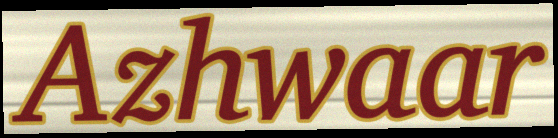
Azhwaar